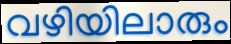
വഴിയിലാരും